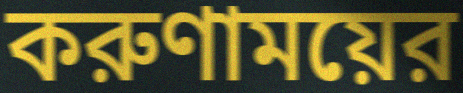
করুণাময়ের